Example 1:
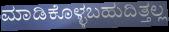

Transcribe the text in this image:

ಮಾಡಿಕೊಳ್ಳಬಹುದಿತ್ತಲ್ಲ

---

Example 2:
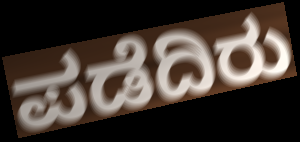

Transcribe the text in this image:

ಪಡೆದಿರು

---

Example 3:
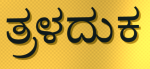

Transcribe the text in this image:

ತ್ರಳದುಕ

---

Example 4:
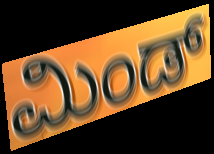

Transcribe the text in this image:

ಮಿಂಡ್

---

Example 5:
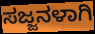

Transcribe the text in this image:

ಸಜ್ಜನಳಾಗಿ